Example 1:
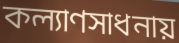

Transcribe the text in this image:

কল্যাণসাধনায়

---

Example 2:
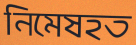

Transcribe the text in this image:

নিমেষহত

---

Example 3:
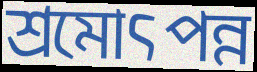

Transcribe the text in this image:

শ্রমোৎপন্ন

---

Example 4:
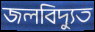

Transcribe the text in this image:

জলবিদ্যুত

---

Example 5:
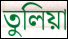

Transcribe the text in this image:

তুলিয়া